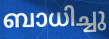
ബാധിച്ചു